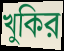
খুকির